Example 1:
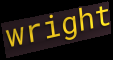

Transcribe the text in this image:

wright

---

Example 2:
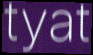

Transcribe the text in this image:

tyat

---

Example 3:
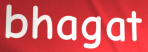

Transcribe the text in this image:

bhagat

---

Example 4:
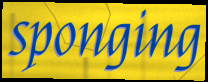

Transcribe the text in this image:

sponging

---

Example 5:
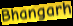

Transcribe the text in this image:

Bhangarh